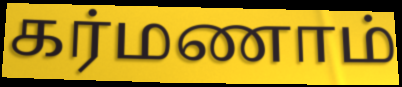
கர்மணாம்